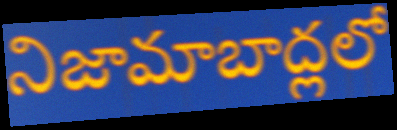
నిజామాబాద్లలో